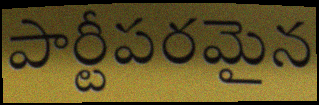
పార్టీపరమైన